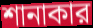
শানাকার